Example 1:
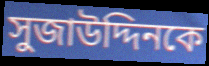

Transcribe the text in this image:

সুজাউদ্দিনকে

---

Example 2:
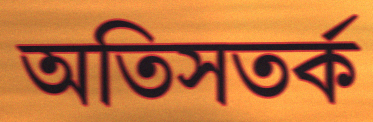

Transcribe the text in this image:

অতিসতর্ক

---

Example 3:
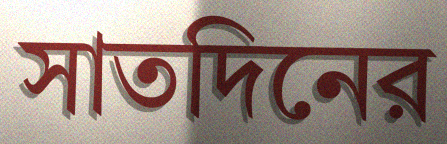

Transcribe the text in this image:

সাতদিনের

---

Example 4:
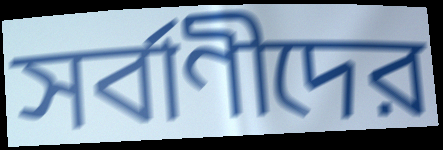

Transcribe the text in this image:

সর্বাণীদের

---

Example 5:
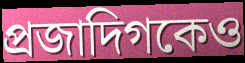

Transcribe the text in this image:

প্রজাদিগকেও